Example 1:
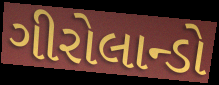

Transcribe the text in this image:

ગીરોલાન્ડો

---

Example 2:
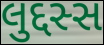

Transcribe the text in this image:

લુદ્દસ્સ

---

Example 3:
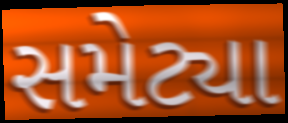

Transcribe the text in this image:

સમેટ્યા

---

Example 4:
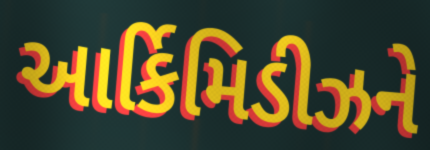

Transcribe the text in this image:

આર્કિમિડીઝને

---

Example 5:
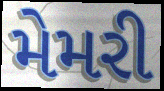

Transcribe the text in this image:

મેમરી